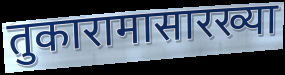
तुकारामासारख्या